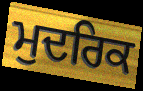
ਮੁਦਰਿਕ